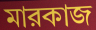
মারকাজ